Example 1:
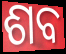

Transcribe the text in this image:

ଶବ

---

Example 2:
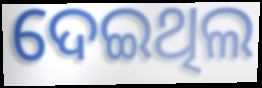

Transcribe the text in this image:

ଦେଇଥିଲ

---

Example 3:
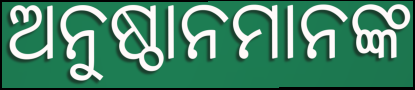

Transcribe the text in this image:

ଅନୁଷ୍ଠାନମାନଙ୍କ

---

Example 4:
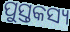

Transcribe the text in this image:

ପୁସ୍ତକସ୍ୟ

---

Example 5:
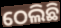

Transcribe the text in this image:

ଠେଲିଛି